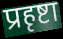
प्रहृष्टा